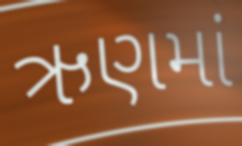
ઋણમાં